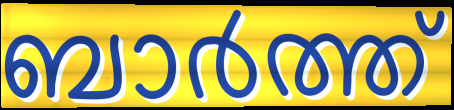
ബാർത്ത്